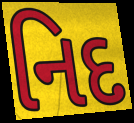
નિદ